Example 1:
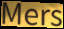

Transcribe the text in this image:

Mers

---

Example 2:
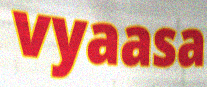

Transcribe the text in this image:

vyaasa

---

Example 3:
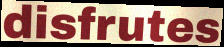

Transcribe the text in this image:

disfrutes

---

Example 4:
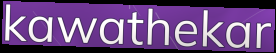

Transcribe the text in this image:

kawathekar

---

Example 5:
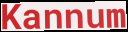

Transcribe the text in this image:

Kannum